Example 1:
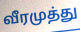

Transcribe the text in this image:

வீரமுத்து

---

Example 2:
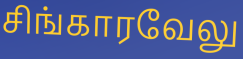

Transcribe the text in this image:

சிங்காரவேலு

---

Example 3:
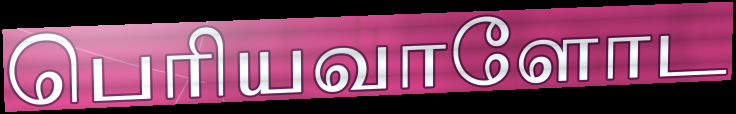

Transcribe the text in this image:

பெரியவாளோட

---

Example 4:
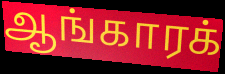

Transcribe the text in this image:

ஆங்காரக்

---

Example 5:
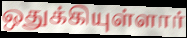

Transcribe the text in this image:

ஒதுக்கியுள்ளார்